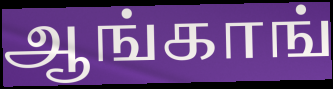
ஆங்காங்